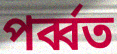
পর্ব্বত